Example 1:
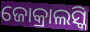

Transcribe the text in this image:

ଜୋକ୍ରାଲସ୍କି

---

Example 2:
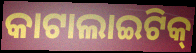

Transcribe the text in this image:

କାଟାଲାଇଟିକ୍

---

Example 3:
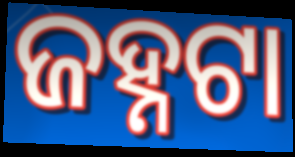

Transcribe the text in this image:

ଜହ୍ନଟା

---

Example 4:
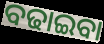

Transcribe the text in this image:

ବଢାଇବା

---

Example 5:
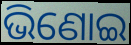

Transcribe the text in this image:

ଭିଣୋଇ